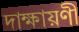
দাক্ষায়ণী